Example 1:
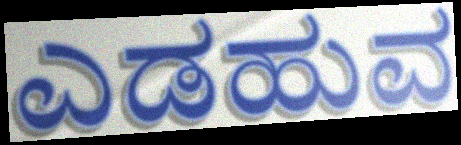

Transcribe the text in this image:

ಎಡಹುವ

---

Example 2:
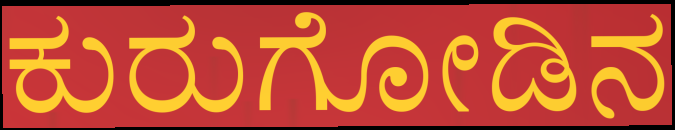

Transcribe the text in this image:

ಕುರುಗೋಡಿನ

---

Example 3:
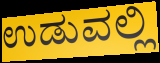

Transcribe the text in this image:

ಉಡುವಲ್ಲಿ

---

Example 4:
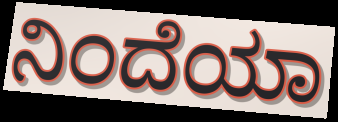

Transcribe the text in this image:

ನಿಂದೆಯಾ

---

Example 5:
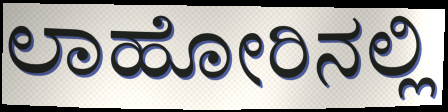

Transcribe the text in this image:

ಲಾಹೋರಿನಲ್ಲಿ